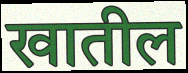
खातील